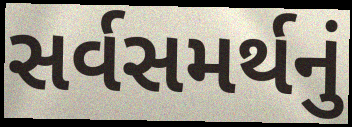
સર્વસમર્થનું